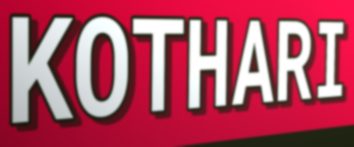
KOTHARI